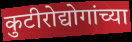
कुटीरोद्योगांच्या